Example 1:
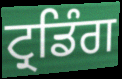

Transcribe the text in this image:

ਟ੍ਰਡਿੰਗ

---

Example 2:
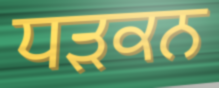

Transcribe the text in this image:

ਧੜਕਨ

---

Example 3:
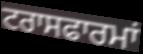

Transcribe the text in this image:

ਟਰਾਸਫਾਰਮਾਂ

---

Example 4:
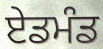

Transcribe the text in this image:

ਏਡਮੰਡ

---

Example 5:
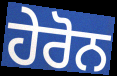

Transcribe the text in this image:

ਹੇਰੋਨ